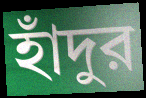
হাঁদুর